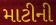
માટીની